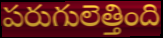
పరుగులెత్తింది